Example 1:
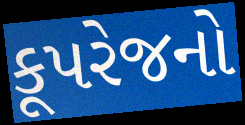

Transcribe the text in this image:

કૂપરેજનો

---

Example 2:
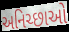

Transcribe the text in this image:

અનિચ્છાઓ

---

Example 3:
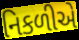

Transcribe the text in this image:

નિકળીએ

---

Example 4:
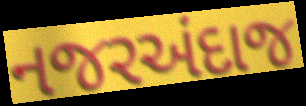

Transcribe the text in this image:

નજરઅંદાજ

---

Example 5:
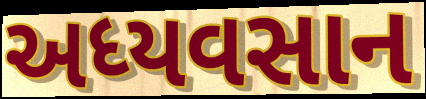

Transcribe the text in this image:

અધ્યવસાન